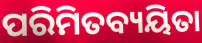
ପରିମିତବ୍ୟୟିତା